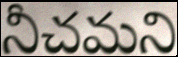
నీచమని